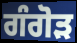
ਗੰਗੋੜ